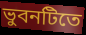
ভুবনটিতে